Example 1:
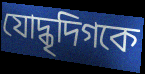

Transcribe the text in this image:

যোদ্ধৃদিগকে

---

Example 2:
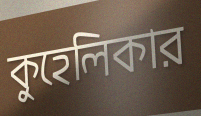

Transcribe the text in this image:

কুহেলিকার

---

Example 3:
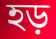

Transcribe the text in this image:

হড়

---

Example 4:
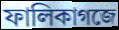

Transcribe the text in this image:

ফালিকাগজে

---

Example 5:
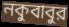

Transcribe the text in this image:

নকুবাবুর